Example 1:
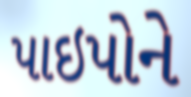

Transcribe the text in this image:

પાઇપોને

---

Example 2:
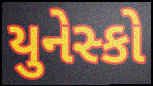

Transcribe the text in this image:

યુનેસ્કો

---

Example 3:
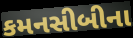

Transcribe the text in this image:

કમનસીબીના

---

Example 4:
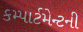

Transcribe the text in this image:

કમ્પાર્ટમેન્ટની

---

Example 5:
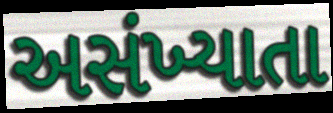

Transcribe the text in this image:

અસંખ્યાતા